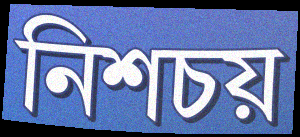
নিশচয়